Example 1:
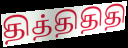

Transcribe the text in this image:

தித்திதிதி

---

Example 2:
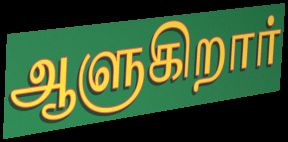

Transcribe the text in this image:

ஆளுகிறார்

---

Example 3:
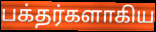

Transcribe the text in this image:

பக்தர்களாகிய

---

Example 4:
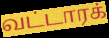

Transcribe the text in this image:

வட்டாரக்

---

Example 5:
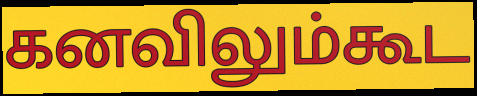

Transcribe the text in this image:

கனவிலும்கூட